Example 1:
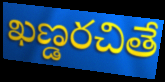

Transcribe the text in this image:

ఖణ్డరచితే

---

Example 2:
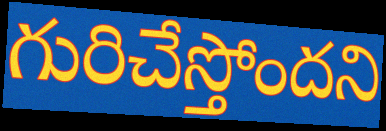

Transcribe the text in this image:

గురిచేస్తోందని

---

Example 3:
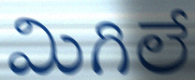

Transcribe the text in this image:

మిగిలే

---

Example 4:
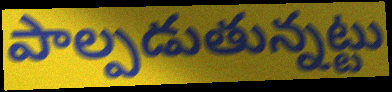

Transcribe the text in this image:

పాల్పడుతున్నట్టు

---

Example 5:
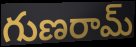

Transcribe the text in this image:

గుణరామ్